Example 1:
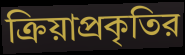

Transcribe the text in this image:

ক্রিয়াপ্রকৃতির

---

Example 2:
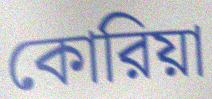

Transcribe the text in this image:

কোরিয়া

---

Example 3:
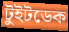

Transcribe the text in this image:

টুইটডেক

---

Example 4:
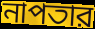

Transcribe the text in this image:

নাপতার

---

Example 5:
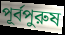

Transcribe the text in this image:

পূর্বপুরুষ